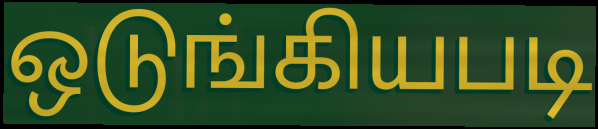
ஒடுங்கியபடி